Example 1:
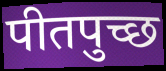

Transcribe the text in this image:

पीतपुच्छ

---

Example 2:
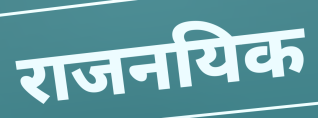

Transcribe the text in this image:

राजनयिक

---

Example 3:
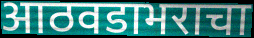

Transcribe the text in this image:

आठवडाभराचा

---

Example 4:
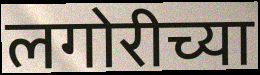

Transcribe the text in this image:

लगोरीच्या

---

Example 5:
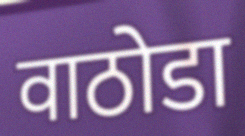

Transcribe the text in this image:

वाठोडा